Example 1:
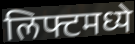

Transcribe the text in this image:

लिफ्टमध्ये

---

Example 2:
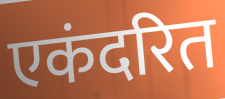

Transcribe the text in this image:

एकंदरित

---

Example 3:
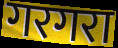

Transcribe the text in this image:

गरगरा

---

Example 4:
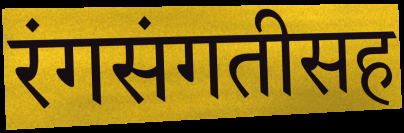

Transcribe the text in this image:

रंगसंगतीसह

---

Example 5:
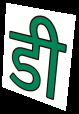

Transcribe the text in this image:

डी